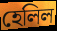
হেলিল